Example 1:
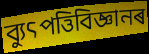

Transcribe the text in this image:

ব্যুৎপত্তিবিজ্ঞানৰ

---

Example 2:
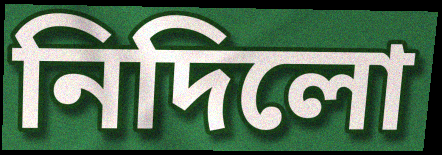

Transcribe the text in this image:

নিদিলো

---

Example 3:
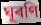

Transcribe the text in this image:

ঘূৰণি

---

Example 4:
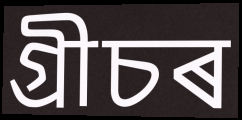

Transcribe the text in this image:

গ্ৰীচৰ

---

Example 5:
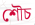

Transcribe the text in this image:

শৌচ